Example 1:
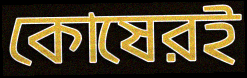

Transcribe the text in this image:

কোষেরই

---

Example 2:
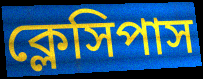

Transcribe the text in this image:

ক্লেসিপাস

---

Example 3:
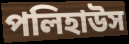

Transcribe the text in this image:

পলিহাউস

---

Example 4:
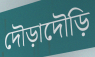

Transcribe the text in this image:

দৌড়াদৌড়ি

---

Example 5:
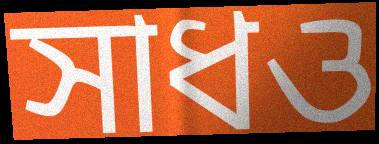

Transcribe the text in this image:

সাধও